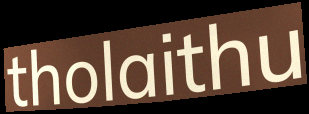
tholaithu